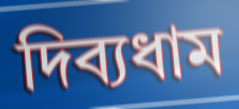
দিব্যধাম